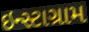
ઇન્સ્ટાગ્રામ